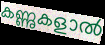
കണ്ണുകളാൽ